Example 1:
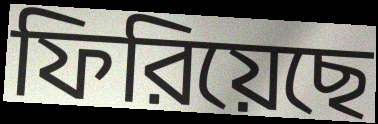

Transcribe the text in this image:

ফিরিয়েছে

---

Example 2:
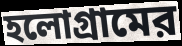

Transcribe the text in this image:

হলোগ্রামের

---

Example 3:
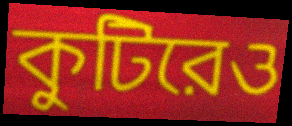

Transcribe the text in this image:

কুটিরেও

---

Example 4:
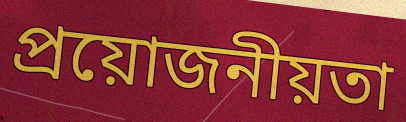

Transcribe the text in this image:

প্রয়োজনীয়তা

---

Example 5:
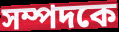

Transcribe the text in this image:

সম্পদকে